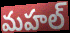
మహల్